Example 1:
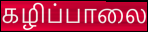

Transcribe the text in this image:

கழிப்பாலை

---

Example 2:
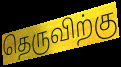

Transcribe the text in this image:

தெருவிற்கு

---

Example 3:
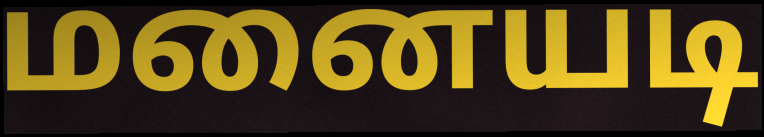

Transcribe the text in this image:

மனையடி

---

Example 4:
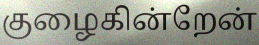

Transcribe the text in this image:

குழைகின்றேன்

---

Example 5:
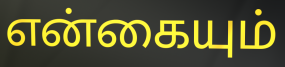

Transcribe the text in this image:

என்கையும்